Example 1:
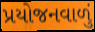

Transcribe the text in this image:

પ્રયોજનવાળું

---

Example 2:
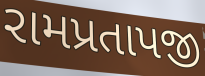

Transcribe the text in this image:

રામપ્રતાપજી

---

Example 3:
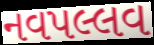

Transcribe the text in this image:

નવપલ્લવ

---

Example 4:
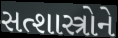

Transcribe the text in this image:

સત્શાસ્ત્રોને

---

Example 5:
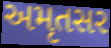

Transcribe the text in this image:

અમૃતસર